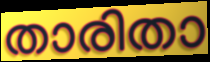
താരിതാ